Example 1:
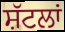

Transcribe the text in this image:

ਸ਼ੱਟਲਾਂ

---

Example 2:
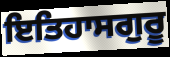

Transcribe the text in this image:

ਇਤਿਹਾਸਗੁਰੂ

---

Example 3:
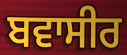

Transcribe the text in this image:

ਬਵਾਸੀਰ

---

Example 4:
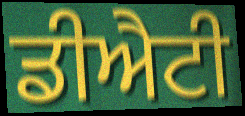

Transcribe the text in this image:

ਡੀਐਟੀ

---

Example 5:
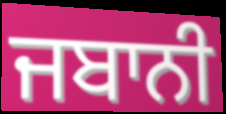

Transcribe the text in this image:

ਜਬਾਨੀ